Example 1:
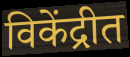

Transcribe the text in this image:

विकेंद्रीत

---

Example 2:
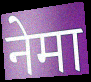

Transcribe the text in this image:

नेमा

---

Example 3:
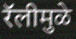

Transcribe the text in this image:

रॅलीमुळे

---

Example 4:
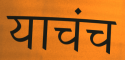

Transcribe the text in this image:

याचंच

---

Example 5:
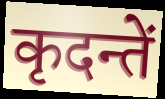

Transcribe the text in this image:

कृदन्तें